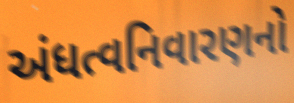
અંધત્વનિવારણનો